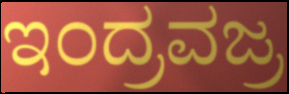
ಇಂದ್ರವಜ್ರ